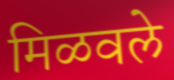
मिळवले